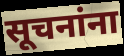
सूचनांना